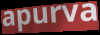
apurva